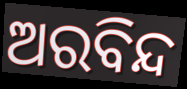
ଅରବିନ୍ଦ